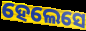
ହେଲେସେ